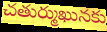
చతుర్ముఖునకు